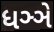
ધઞ્ઞે